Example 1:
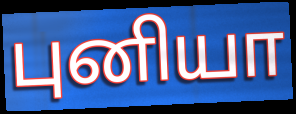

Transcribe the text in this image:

புனியா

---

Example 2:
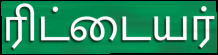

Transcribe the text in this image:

ரிட்டையர்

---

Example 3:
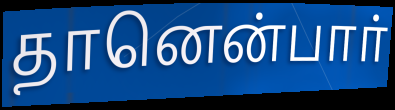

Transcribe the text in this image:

தானென்பார்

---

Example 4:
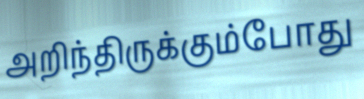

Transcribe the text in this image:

அறிந்திருக்கும்போது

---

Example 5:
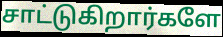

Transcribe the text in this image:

சாட்டுகிறார்களே